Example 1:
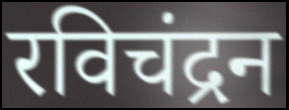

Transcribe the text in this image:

रविचंद्रन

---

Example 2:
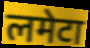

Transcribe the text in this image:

लमेटा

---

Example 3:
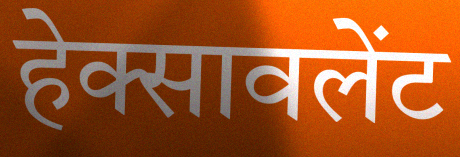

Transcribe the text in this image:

हेक्सावलेंट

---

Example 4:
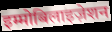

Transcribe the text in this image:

इम्मोबिलाइज़ेशन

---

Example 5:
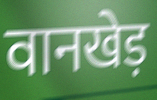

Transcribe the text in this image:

वानखेड़